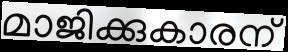
മാജിക്കുകാരന്